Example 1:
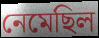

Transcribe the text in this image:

নেমেছিল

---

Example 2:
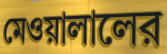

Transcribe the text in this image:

মেওয়ালালের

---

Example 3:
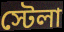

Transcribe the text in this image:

স্টেলা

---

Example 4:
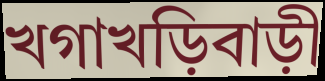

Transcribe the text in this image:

খগাখড়িবাড়ী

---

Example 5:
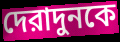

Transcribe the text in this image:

দেরাদুনকে